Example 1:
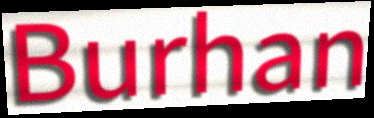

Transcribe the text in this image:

Burhan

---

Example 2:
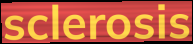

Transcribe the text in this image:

sclerosis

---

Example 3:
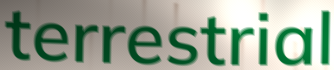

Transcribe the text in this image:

terrestrial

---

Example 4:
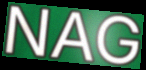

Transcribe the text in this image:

NAG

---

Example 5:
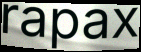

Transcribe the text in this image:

rapax